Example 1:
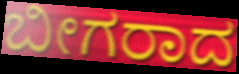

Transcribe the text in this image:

ಬೀಗರಾದ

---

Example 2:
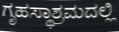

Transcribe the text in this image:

ಗೃಹಸ್ಥಾಶ್ರಮದಲ್ಲಿ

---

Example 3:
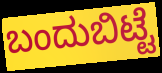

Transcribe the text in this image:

ಬಂದುಬಿಟ್ಟೆ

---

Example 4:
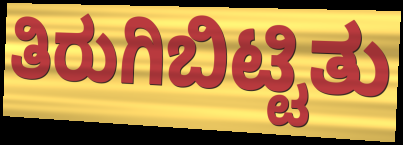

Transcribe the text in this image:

ತಿರುಗಿಬಿಟ್ಟಿತು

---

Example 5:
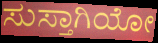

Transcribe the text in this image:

ಸುಸ್ತಾಗಿಯೋ